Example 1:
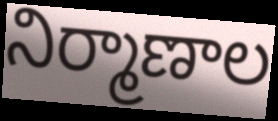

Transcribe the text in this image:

నిర్మాణాల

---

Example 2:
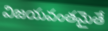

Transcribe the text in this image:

విజయవంతమైతే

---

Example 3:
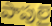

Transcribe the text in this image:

పాపులై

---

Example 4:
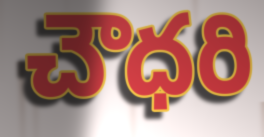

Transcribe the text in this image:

చౌధరి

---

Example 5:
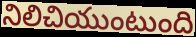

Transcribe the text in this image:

నిలిచియుంటుంది